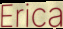
Erica